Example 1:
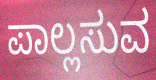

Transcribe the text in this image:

ಪಾಲ್ಲಸುವ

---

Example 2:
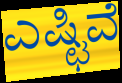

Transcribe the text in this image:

ಎಷ್ಟಿವೆ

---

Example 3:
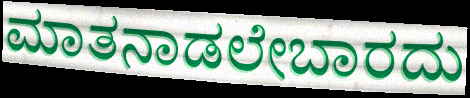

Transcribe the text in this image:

ಮಾತನಾಡಲೇಬಾರದು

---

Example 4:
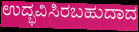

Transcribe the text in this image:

ಉದ್ಭವಿಸಿರಬಹುದಾದ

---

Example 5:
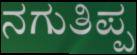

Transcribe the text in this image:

ನಗುತಿಪ್ಪ